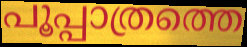
പൂപ്പാത്രത്തെ